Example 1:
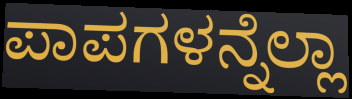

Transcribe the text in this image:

ಪಾಪಗಳನ್ನೆಲ್ಲಾ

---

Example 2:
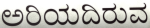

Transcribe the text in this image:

ಅರಿಯದಿರುವ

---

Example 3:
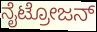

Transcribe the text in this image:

ನೈಟ್ರೋಜನ್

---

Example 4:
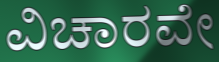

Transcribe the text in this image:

ವಿಚಾರವೇ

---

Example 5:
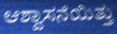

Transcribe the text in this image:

ಆಶ್ವಾಸನೆಯಿತ್ತು